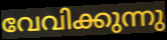
വേവിക്കുന്നു